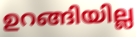
ഉറങ്ങിയില്ല